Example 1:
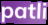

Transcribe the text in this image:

patli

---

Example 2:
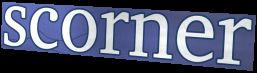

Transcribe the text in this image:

scorner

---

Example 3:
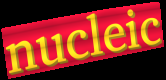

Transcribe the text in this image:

nucleic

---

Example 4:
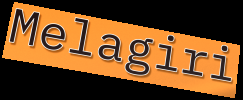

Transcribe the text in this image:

Melagiri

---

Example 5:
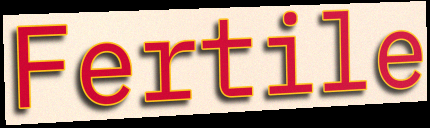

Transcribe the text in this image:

Fertile